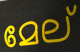
മേല്